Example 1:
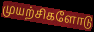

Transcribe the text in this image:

முயற்சிகளோடு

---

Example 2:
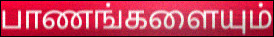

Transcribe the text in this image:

பாணங்களையும்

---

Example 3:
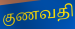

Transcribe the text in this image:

குணவதி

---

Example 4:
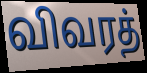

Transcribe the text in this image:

விவரத்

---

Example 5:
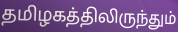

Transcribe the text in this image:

தமிழகத்திலிருந்தும்